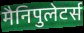
मैनिपुलेटर्स